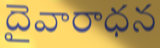
దైవారాధన